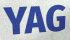
YAG